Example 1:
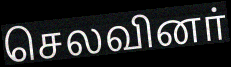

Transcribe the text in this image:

செலவினர்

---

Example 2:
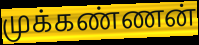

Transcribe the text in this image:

முக்கண்ணன்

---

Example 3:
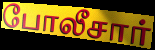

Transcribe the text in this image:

போலீசார்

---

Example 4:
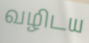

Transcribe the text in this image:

வழிடய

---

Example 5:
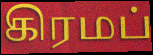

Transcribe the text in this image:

கிரமப்